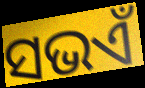
ସଭଏଁ